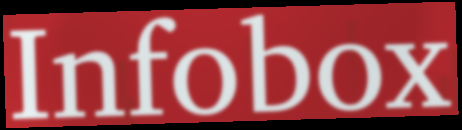
Infobox